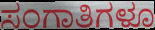
ಸಂಗಾತಿಗಳೂ